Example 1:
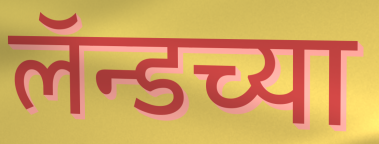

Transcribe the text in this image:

लॅन्डच्या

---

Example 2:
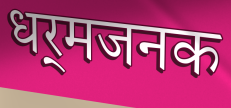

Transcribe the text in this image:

धर्मजनक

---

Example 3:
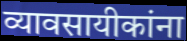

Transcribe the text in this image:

व्यावसायीकांना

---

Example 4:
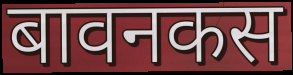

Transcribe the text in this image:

बावनकस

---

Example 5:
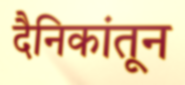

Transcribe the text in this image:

दैनिकांतून